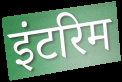
इंटरिम